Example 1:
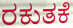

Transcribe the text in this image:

ರಕುತಕೆ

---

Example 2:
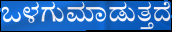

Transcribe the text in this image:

ಒಳಗುಮಾಡುತ್ತದೆ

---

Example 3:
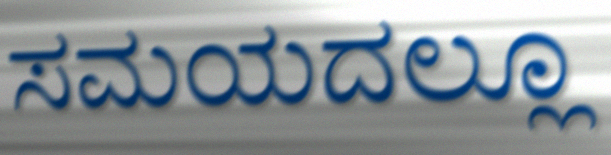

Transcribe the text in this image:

ಸಮಯದಲ್ಲೂ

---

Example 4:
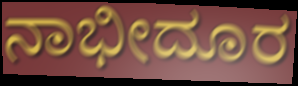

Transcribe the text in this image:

ನಾಭೀದೂರ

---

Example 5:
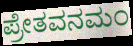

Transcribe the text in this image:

ಪ್ರೇತವನಮಂ